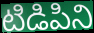
టిడిపిని